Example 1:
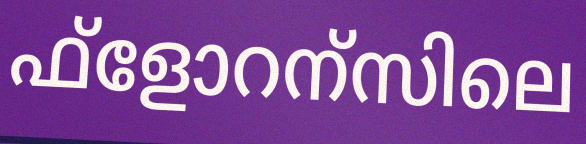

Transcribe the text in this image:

ഫ്ളോറന്സിലെ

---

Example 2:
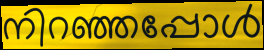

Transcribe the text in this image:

നിറഞ്ഞപ്പോൾ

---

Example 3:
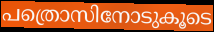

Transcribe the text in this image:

പത്രൊസിനോടുകൂടെ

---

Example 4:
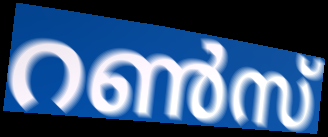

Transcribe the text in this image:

റൺസ്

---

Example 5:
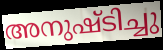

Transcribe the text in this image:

അനുഷ്ടിച്ചു